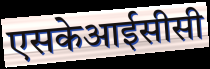
एसकेआईसीसी